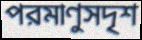
পরমাণুসদৃশ